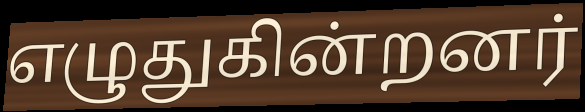
எழுதுகின்றனர்